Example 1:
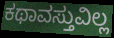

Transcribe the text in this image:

ಕಥಾವಸ್ತುವಿಲ್ಲ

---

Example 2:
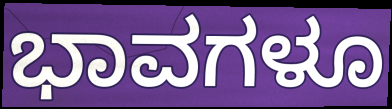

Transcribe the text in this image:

ಭಾವಗಳೂ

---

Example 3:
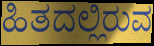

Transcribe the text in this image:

ಹಿತದಲ್ಲಿರುವ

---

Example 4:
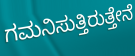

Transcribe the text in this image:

ಗಮನಿಸುತ್ತಿರುತ್ತೇನೆ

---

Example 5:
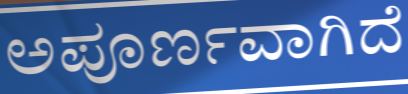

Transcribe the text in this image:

ಅಪೂರ್ಣವಾಗಿದೆ